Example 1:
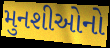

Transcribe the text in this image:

મુનશીઓનો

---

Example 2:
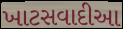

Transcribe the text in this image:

ખાટસવાદીઆ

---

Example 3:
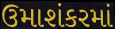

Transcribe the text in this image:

ઉમાશંકરમાં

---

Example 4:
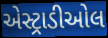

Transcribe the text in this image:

એસ્ટ્રાડીઓલ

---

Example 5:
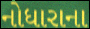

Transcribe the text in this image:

નોધારાના